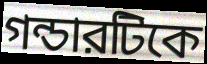
গন্ডারটিকে